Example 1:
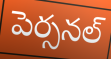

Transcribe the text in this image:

పెర్సనల్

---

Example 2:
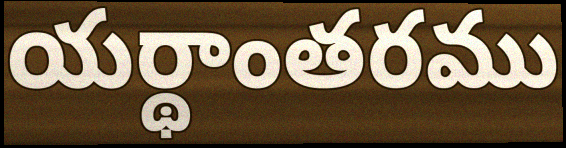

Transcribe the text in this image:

యర్థాంతరము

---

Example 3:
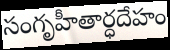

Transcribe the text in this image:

సంగృహీతార్ధదేహం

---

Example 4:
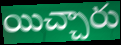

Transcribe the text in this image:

యిచ్చారు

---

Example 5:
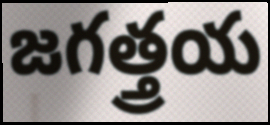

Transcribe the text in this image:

జగత్త్రయ